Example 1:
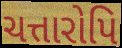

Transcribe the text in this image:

ચત્તારોપિ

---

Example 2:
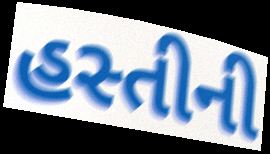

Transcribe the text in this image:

હસ્તીની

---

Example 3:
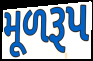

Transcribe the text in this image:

મૂળરૂપ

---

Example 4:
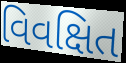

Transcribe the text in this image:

વિવક્ષિત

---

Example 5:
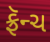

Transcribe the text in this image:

ફ્રૅન્ચ